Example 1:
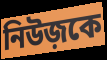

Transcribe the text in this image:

নিউজ়কে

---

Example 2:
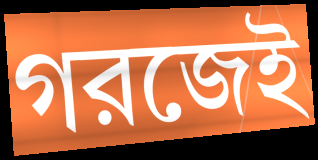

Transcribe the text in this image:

গরজেই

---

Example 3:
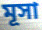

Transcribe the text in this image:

মূসা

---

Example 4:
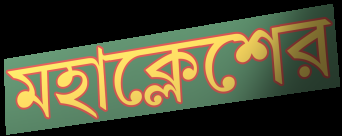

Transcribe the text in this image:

মহাক্লেশের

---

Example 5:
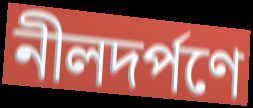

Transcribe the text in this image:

নীলদর্পণে